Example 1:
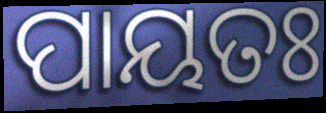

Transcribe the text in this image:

ପାୟତଃ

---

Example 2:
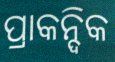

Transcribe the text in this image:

ପ୍ରାକନ୍ଦିକ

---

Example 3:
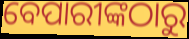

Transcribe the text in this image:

ବେପାରୀଙ୍କଠାରୁ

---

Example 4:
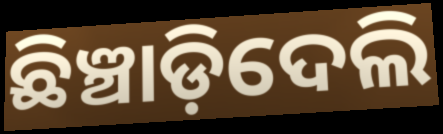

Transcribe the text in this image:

ଛିଞ୍ଚାଡ଼ିଦେଲି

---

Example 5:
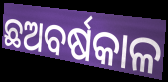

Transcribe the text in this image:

ଛଅବର୍ଷକାଳ